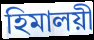
হিমালয়ী